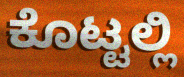
ಕೊಟ್ಟಲ್ಲಿ